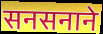
सनसनाने